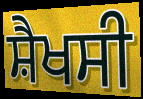
ਸ਼ੈਖਸੀ